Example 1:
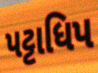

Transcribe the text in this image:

પટ્ટાધિપ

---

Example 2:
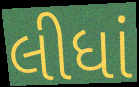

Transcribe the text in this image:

લીધાં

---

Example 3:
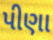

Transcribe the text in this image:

પીણા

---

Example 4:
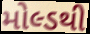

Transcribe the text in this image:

મોલ્ડથી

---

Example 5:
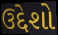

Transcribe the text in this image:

ઉદ્દેશો